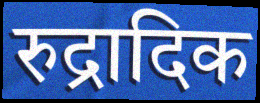
रुद्रादिक